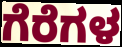
ಗೆರೆಗಳ